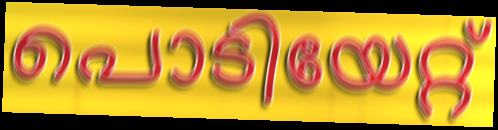
പൊടിയേറ്റ്